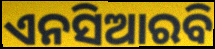
ଏନସିଆରବି